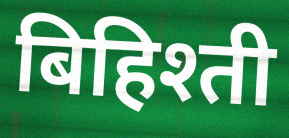
बिहिश्ती